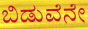
ಬಿಡುವೆನೇ